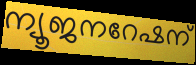
ന്യൂജനറേഷന്